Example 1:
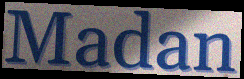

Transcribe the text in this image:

Madan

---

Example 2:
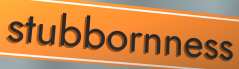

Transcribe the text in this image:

stubbornness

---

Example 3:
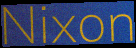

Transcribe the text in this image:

Nixon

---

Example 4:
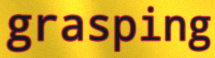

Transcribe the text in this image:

grasping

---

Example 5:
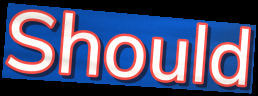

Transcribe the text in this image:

Should